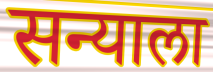
सन्याला